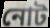
নোট